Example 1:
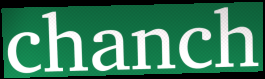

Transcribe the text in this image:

chanch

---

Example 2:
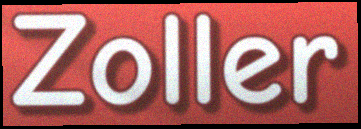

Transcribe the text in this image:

Zoller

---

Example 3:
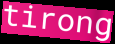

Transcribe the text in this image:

tirong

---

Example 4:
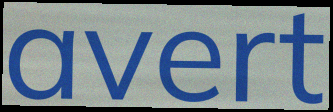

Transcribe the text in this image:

avert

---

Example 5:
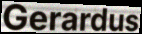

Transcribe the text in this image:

Gerardus